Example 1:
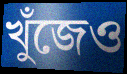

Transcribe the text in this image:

খুঁজেও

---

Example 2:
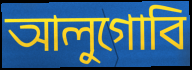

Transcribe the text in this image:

আলুগোবি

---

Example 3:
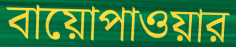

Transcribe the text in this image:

বায়োপাওয়ার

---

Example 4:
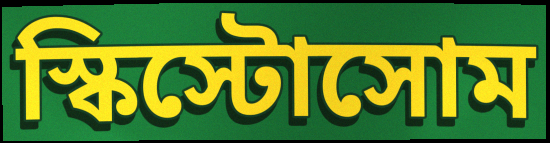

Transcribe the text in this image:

স্কিস্টোসোম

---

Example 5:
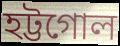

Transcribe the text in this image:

হট্টগোল